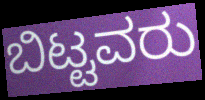
ಬಿಟ್ಟವರು